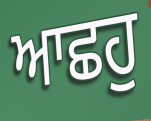
ਆਛਹੁ